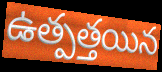
ఉత్పత్తయిన